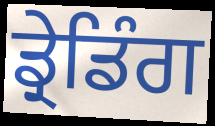
ਡ੍ਰੇਡਿੰਗ